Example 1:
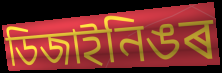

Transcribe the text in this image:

ডিজাইনিঙৰ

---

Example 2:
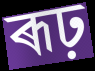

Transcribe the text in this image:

ৰূঢ়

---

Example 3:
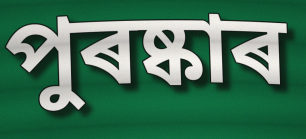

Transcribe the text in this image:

পুৰষ্কাৰ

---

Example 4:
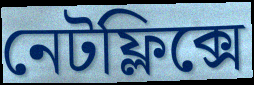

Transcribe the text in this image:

নেটফ্লিক্সে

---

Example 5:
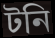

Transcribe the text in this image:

টনি